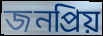
জনপ্রিয়